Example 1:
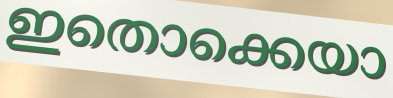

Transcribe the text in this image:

ഇതൊക്കെയാ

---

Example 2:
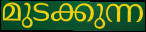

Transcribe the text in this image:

മുടക്കുന്ന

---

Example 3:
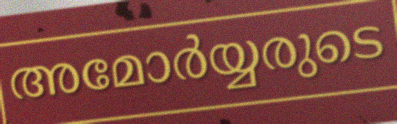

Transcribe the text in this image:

അമോർയ്യരുടെ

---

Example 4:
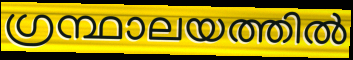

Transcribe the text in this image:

ഗ്രന്ഥാലയത്തിൽ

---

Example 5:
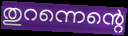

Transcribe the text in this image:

തുറന്നെന്റെ